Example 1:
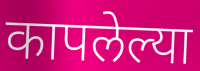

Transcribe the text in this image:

कापलेल्या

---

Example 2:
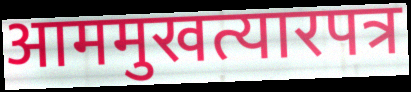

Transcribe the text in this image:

आममुखत्यारपत्र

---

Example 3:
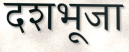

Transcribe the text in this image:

दशभूजा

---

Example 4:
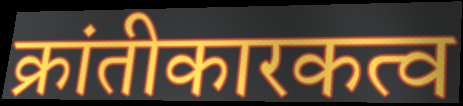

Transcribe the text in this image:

क्रांतीकारकत्व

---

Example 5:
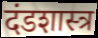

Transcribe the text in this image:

दंडशास्त्र